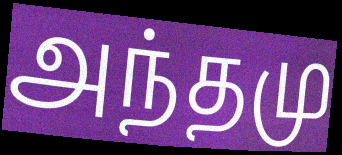
அந்தமு